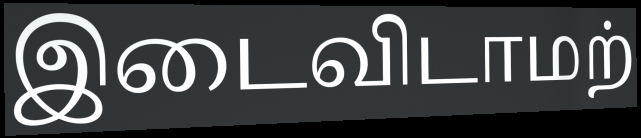
இடைவிடாமற்